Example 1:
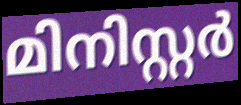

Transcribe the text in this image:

മിനിസ്റ്റർ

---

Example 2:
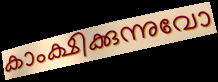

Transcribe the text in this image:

കാംക്ഷിക്കുന്നുവോ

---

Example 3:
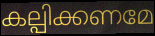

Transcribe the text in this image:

കല്പിക്കണമേ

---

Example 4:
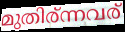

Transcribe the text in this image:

മുതിര്ന്നവര്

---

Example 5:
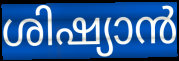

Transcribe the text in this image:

ശിഷ്യാൻ